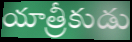
యాత్రీకుడు